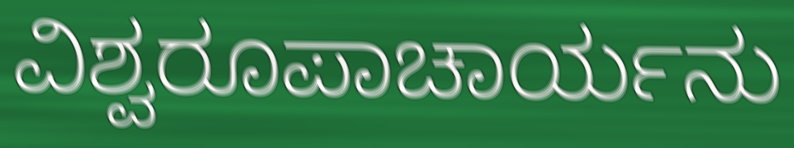
ವಿಶ್ವರೂಪಾಚಾರ್ಯನು